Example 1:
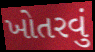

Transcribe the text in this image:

ખોતરવું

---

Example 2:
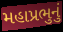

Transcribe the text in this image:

મહાપ્રભુનું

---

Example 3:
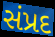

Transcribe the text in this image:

સંપ્રદ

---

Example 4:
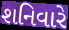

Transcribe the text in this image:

શનિવારે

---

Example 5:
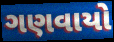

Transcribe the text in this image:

ગણવાયો